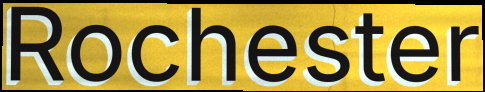
Rochester